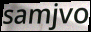
samjvo